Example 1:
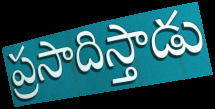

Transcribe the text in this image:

ప్రసాదిస్తాడు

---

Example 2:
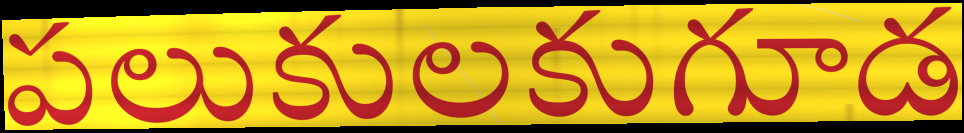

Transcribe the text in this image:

పలుకులకుగూడ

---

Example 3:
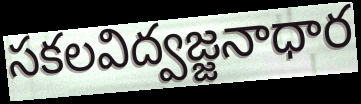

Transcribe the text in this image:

సకలవిద్వజ్జనాధార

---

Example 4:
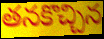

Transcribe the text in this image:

తనకొచ్చిన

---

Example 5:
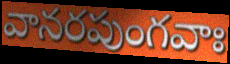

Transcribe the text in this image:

వానరపుంగవాః